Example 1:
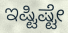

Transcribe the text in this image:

ಇಷ್ಟಿಷ್ಟೇ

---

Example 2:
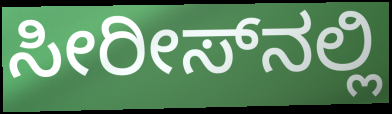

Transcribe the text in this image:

ಸೀರೀಸ್‌ನಲ್ಲಿ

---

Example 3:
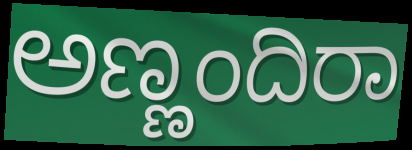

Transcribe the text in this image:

ಅಣ್ಣಂದಿರಾ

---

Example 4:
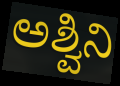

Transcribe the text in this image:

ಅಶ್ವಿನಿ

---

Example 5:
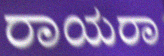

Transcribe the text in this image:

ರಾಯರಾ